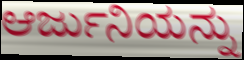
ಆರ್ಜುನಿಯನ್ನು